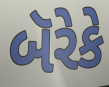
બૅરેકે